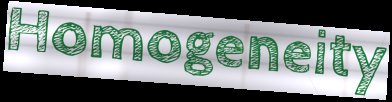
Homogeneity